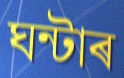
ঘন্টাৰ